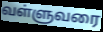
வள்ளுவரை